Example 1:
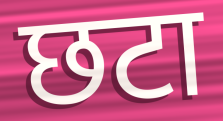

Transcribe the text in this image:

छटा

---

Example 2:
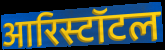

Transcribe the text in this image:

आरिस्टॉटल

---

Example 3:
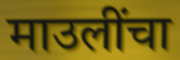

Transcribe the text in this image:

माउलींचा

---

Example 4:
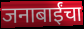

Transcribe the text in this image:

जनाबाईंचा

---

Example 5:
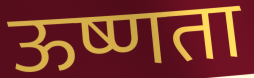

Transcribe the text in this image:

ऊष्णता